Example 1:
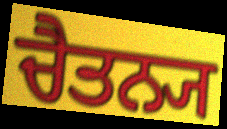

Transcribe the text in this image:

ਚੈਤਨ੍ਯ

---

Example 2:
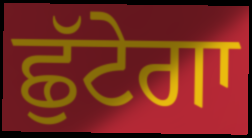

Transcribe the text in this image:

ਛੁੱਟੇਗਾ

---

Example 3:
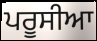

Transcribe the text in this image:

ਪਰੂਸੀਆ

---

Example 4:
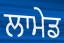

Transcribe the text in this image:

ਲਾਮੇਡ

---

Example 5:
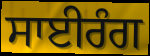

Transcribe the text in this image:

ਸਾਈਰੰਗ